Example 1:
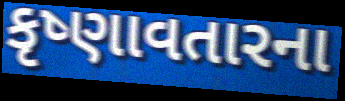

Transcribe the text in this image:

કૃષ્ણાવતારના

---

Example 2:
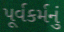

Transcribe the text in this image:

પૂર્વકર્મનું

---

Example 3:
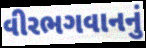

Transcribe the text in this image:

વીરભગવાનનું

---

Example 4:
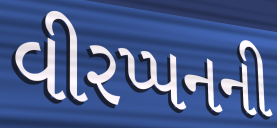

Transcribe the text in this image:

વીરપ્પનની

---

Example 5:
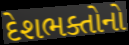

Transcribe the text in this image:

દેશભક્તોનો